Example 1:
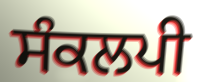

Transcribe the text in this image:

ਸੰਕਲਪੀ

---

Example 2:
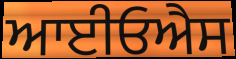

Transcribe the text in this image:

ਆਈਓਐਸ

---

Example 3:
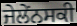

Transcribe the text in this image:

ਜੇਲੇਂਨਸਕੀ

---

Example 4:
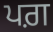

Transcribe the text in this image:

ਪਗ਼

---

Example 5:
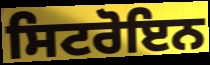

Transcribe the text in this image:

ਸਿਟਰੋਇਨ